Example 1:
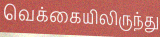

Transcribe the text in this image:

வெக்கையிலிருந்து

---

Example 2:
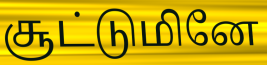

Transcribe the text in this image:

சூட்டுமினே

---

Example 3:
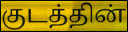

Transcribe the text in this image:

குடத்தின்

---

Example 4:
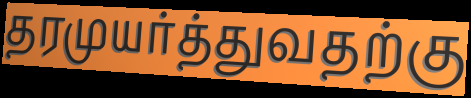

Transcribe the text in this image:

தரமுயர்த்துவதற்கு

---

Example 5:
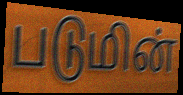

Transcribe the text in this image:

படுமின்